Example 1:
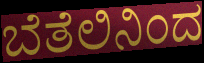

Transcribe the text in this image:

ಬೆತೆಲಿನಿಂದ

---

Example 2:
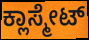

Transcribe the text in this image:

ಕ್ಲಾಸ್ಮೇಟ್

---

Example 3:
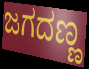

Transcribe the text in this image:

ಜಗದಣ್ಣ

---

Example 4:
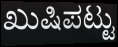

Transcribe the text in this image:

ಖುಷಿಪಟ್ಟು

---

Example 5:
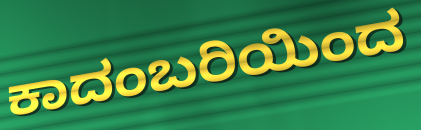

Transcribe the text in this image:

ಕಾದಂಬರಿಯಿಂದ